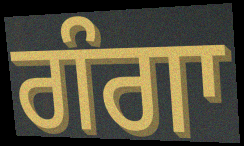
ਗੰਗਾ